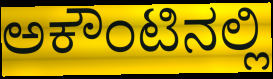
ಅಕೌಂಟಿನಲ್ಲಿ